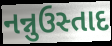
નન્નુઉસ્તાદ